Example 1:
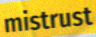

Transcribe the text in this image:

mistrust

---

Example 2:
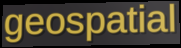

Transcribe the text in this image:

geospatial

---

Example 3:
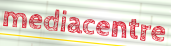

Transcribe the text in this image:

mediacentre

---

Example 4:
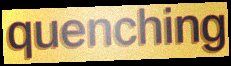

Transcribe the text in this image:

quenching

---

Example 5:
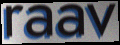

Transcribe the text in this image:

raav